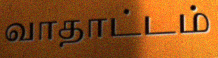
வாதாட்டம்